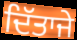
ਦਿੱਤਾਜੇ